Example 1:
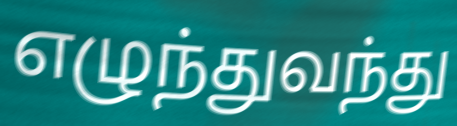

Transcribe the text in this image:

எழுந்துவந்து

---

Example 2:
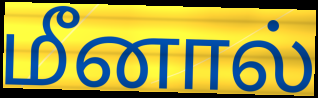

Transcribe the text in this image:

மீனால்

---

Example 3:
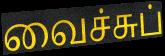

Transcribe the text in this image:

வைச்சுப்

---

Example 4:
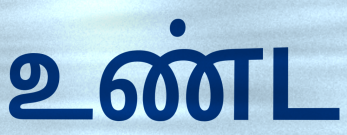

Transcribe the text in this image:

உண்ட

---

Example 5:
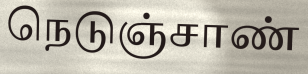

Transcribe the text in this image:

நெடுஞ்சாண்